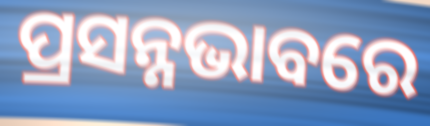
ପ୍ରସନ୍ନଭାବରେ